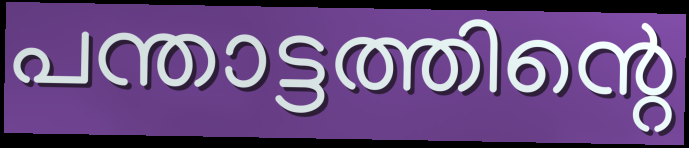
പന്താട്ടത്തിന്റെ